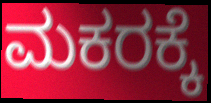
ಮಕರಕ್ಕೆ